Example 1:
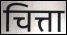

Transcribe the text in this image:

चित्ता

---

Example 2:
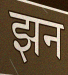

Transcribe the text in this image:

झन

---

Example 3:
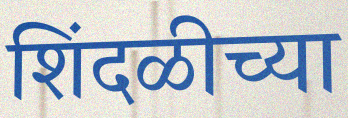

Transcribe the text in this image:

शिंदळीच्या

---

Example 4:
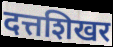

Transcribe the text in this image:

दत्तशिखर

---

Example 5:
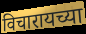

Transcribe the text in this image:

विचारायच्या